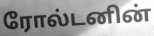
ரோல்டனின்